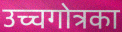
उच्चगोत्रका